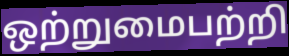
ஒற்றுமைபற்றி